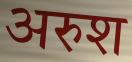
अरुश